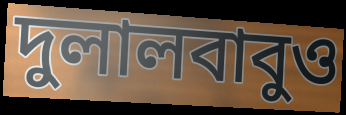
দুলালবাবুও